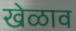
खेळाव